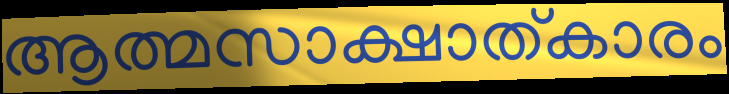
ആത്മസാക്ഷാത്കാരം